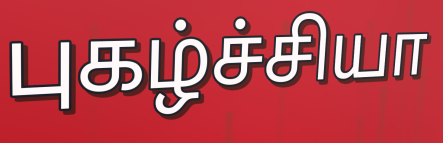
புகழ்ச்சியா